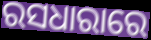
ରସଧାରାରେ